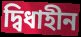
দ্বিধাহীন